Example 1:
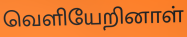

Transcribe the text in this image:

வெளியேறினாள்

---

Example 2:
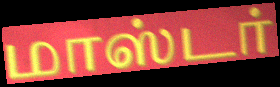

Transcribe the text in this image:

மாஸ்டர்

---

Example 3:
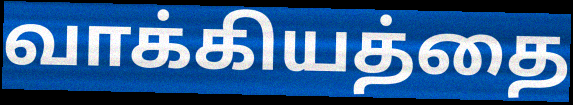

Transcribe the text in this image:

வாக்கியத்தை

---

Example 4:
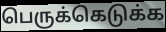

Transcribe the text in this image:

பெருக்கெடுக்க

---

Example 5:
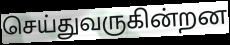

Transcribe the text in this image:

செய்துவருகின்றன